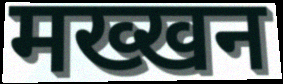
मख्खन